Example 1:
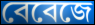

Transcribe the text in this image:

বেবেজে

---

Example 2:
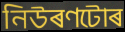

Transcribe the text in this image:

নিউৰণটোৰ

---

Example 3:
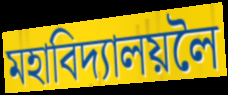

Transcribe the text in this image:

মহাবিদ্যালয়লৈ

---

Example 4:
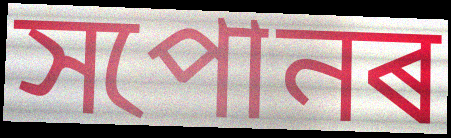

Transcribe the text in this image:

সপোনৰ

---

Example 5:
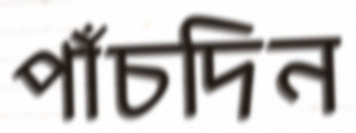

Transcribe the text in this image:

পাঁচদিন